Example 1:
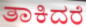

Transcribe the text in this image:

ತಾಕಿದರೆ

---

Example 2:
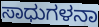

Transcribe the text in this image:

ಸಾಧುಗಳನಾ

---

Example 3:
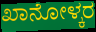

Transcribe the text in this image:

ಖಾನೋಳ್ಕರ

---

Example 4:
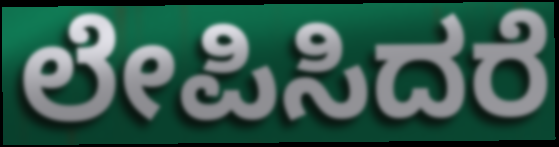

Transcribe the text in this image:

ಲೇಪಿಸಿದರೆ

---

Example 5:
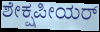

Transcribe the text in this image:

ಶೇಕ್ಷಪೀಯರ್